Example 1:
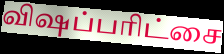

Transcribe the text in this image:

விஷப்பரிட்சை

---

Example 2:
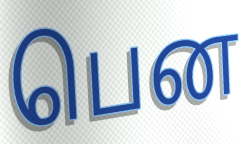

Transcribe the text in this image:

பென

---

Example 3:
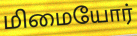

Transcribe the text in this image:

மிமையோர்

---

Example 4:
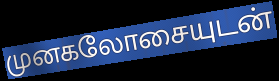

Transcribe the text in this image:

முனகலோசையுடன்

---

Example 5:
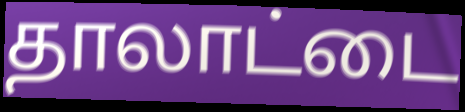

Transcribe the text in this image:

தாலாட்டை